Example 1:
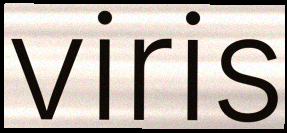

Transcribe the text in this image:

viris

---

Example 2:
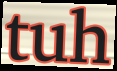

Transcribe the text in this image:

tuh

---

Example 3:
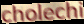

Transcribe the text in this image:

cholechi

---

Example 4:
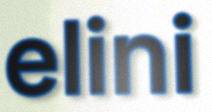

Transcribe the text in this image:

elini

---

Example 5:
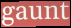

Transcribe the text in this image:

gaunt